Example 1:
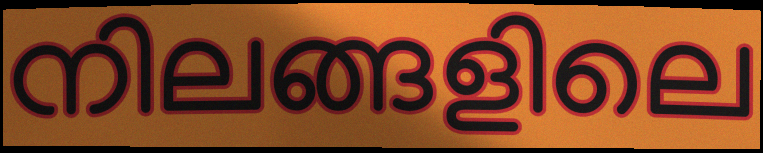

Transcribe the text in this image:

നിലങ്ങളിലെ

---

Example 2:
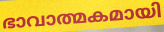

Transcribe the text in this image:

ഭാവാത്മകമായി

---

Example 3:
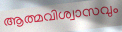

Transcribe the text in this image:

ആത്മവിശ്വാസവും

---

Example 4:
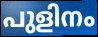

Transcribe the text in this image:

പുളിനം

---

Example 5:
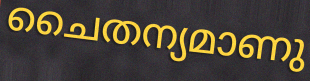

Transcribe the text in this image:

ചൈതന്യമാണു